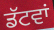
ਡੱਟਵਾਂ